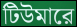
টিউমারে